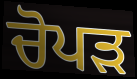
ਚੋਪੜ